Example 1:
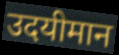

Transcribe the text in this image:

उदयीमान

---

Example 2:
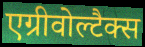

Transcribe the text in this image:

एग्रीवोल्टैक्स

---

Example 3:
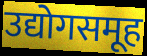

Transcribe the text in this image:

उद्योगसमूह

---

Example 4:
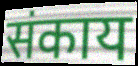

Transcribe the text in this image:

संकाय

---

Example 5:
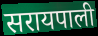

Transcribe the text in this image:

सरायपाली